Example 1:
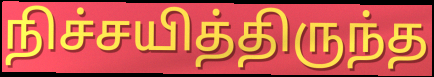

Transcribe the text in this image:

நிச்சயித்திருந்த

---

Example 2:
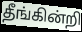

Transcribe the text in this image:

தீங்கின்றி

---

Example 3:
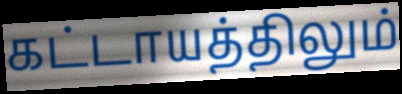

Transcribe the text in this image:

கட்டாயத்திலும்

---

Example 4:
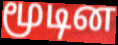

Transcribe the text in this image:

மூடின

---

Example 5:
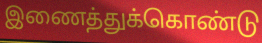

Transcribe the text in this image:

இணைத்துக்கொண்டு